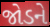
જોડને